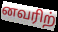
னவரிற்